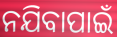
ନଯିବାପାଇଁ